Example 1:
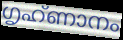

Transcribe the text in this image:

ഗൃഹ്ണാനം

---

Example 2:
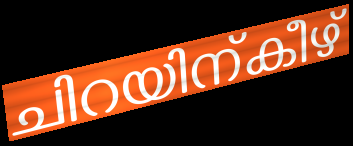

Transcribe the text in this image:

ചിറയിന്കീഴ്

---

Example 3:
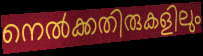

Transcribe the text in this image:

നെൽക്കതിരുകളിലും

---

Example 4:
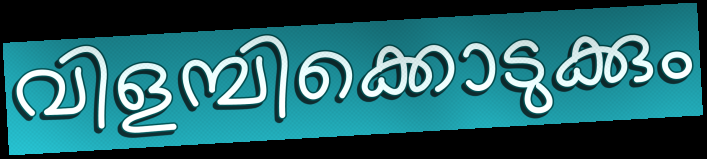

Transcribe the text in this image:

വിളമ്പിക്കൊടുക്കും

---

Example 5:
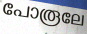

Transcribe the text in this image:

പോരൂലേ